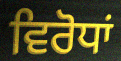
ਵਿਰੋਧਾਂ